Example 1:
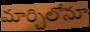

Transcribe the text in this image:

మార్చిలోనూ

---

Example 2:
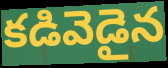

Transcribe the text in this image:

కడివెడైన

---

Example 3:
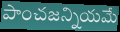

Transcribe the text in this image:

పాంచజన్నియమే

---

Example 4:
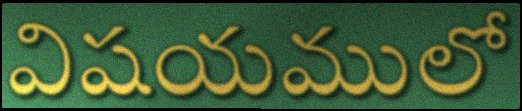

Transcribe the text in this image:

విషయములో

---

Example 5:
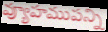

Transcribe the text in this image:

వ్యూహముపన్ని